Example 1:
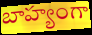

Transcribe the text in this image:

బాహ్యంగా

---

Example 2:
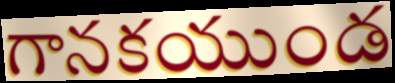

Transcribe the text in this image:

గానకయుండ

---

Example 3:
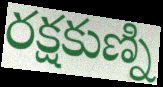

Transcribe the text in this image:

రక్షకుణ్ని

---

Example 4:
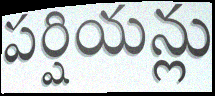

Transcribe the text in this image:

పర్షియన్లు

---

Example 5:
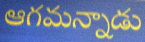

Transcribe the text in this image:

ఆగమన్నాడు